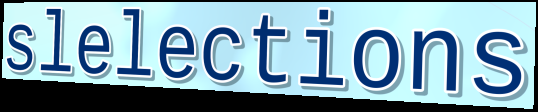
slelections